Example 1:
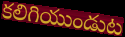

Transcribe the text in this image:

కలిగియుండుట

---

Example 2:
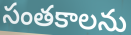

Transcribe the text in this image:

సంతకాలను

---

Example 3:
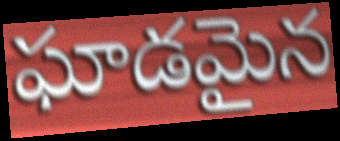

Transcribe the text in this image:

ఘాడమైన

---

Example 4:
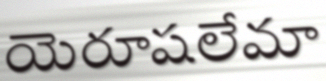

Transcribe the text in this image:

యెరూషలేమా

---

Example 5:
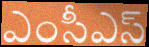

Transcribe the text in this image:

ఎంసీఎస్